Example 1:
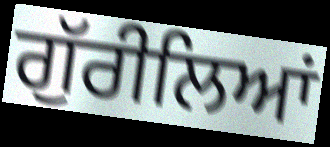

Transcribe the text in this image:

ਗੁੱਰੀਲਿਆਂ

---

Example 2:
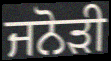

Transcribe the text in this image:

ਜਨੋੜੀ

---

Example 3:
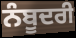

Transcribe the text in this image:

ਨੰਬੂਦਰੀ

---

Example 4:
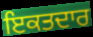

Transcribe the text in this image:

ਇਕਤਦਾਰ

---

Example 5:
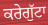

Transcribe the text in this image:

ਕਰੇਗੁੱਟਾ